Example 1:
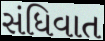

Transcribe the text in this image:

સંધિવાત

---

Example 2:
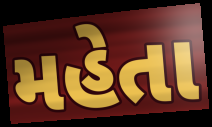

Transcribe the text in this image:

મહેતા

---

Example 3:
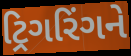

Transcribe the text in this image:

ટ્રિગરિંગને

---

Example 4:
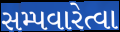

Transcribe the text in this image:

સમ્પવારેત્વા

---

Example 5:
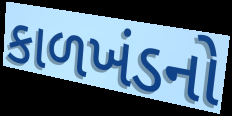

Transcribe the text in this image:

કાળખંડનો